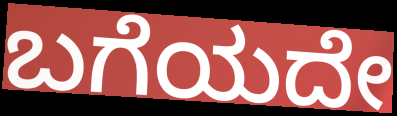
ಬಗೆಯದೇ